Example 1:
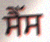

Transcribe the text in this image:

ਸੈੱਸ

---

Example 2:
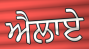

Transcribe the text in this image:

ਐਲਾਏ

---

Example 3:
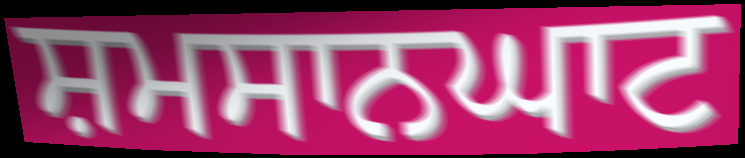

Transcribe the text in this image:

ਸ਼ਮਸਾਨਘਾਟ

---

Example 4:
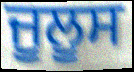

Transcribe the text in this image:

ਜੂਲੂਸ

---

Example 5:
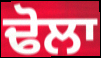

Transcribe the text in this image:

ਢੋਲਾ